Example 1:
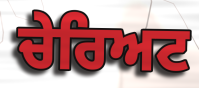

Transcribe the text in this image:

ਚੇਰਿਅਟ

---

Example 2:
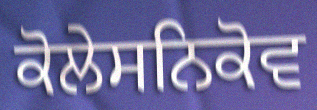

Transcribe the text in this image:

ਕੋਲੇਸਨਿਕੋਵ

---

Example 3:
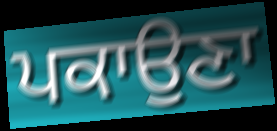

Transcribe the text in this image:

ਪਕਾਉਣਾ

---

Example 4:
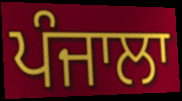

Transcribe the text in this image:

ਪੰਜਾਲਾ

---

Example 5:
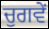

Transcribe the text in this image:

ਚੁਗਵੇਂ